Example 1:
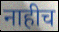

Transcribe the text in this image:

नाहीच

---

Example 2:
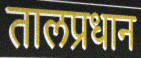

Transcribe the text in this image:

तालप्रधान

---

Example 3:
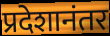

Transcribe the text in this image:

प्रदेशानंतर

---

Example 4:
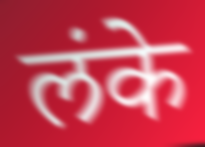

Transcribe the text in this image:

लंके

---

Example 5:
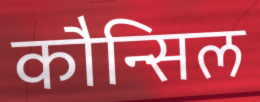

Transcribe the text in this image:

कौन्सिल